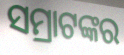
ସମ୍ରାଟଙ୍କର